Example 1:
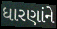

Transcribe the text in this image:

ધારણાંને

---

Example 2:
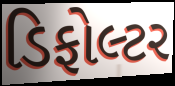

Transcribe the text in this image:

ડિફોલ્ટર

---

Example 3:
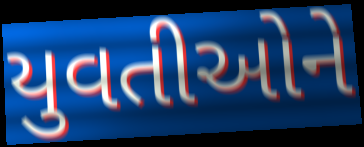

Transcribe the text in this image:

યુવતીઓને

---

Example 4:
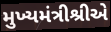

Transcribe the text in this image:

મુખ્યમંત્રીશ્રીએ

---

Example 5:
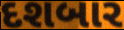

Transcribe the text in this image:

દશબાર